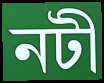
নটী